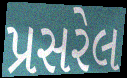
પ્રસરેલ